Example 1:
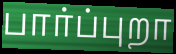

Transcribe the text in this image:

பார்ப்புறா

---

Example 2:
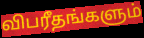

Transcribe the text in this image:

விபரீதங்களும்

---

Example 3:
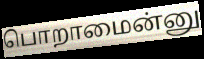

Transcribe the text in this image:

பொறாமைன்னு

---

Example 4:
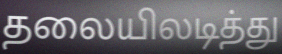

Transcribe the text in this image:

தலையிலடித்து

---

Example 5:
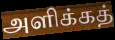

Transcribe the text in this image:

அளிக்கத்